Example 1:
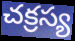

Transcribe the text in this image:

చక్రస్య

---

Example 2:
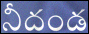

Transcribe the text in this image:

నీదండ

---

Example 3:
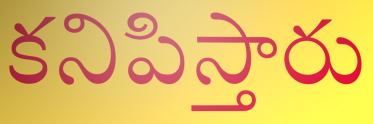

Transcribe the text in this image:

కనిపిస్తారు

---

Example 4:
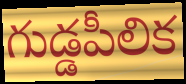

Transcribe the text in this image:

గుడ్డపీలిక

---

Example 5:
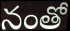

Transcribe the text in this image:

నంతో